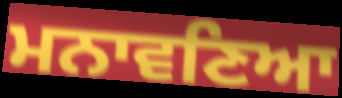
ਮਨਾਵਣਿਆ